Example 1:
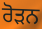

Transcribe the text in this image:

ਰੋੜਨ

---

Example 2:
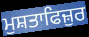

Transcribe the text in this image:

ਮੁਸ਼ਤਾਫਿਜ਼ੁਰ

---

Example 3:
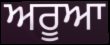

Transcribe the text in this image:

ਅਰੂਆ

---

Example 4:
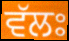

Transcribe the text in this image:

ਵੱਲਃ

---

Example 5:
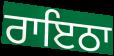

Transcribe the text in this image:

ਰਾਇਠਾ